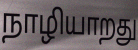
நாழியாறது